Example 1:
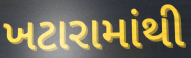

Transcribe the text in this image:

ખટારામાંથી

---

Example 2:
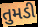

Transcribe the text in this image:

તુમડી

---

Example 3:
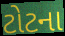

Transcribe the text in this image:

ટોટના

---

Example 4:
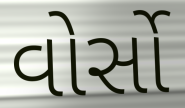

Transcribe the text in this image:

વોર્સો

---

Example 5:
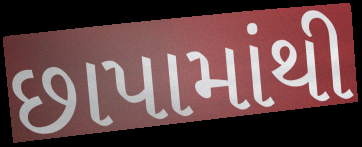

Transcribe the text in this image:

છાપામાંથી